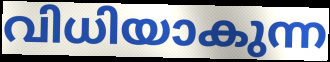
വിധിയാകുന്ന